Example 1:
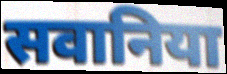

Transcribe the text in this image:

सवानिया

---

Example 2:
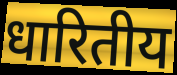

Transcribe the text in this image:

धारितीय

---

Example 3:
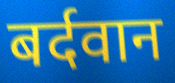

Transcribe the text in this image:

बर्दवान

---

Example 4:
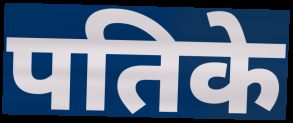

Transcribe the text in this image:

पतिके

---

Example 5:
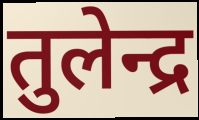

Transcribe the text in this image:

तुलेन्द्र